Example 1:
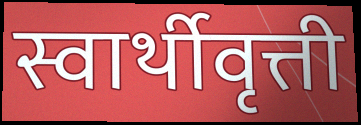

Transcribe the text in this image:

स्वार्थीवृत्ती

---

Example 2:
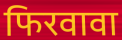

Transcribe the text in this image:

फिरवावा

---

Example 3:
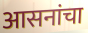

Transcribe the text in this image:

आसनांचा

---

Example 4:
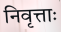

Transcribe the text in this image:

निवृत्ताः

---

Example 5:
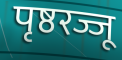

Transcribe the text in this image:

पृष्ठरज्जू